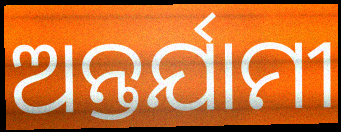
ଅନ୍ତର୍ଯାମୀ